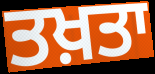
ਤਖ਼ਤਾ